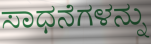
ಸಾಧನೆಗಳನ್ನು